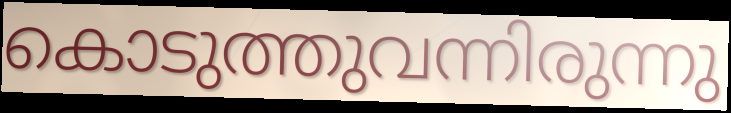
കൊടുത്തുവന്നിരുന്നു